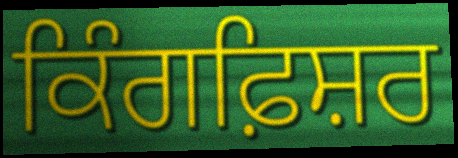
ਕਿੰਗਫ਼ਿਸ਼ਰ